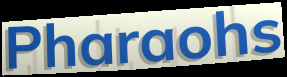
Pharaohs